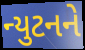
ન્યુટનને